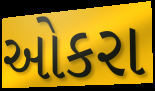
ઓકરા